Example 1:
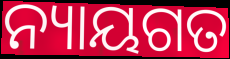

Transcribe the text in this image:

ନ୍ୟାୟଗତ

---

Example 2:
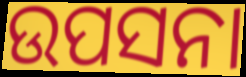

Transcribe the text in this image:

ଉପସନା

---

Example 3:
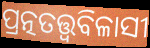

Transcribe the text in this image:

ପ୍ରତ୍ନତତ୍ତ୍ବବିଳାସୀ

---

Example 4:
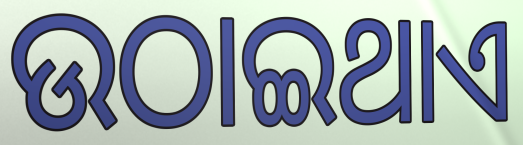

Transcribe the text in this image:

ଉଠାଇଥାଏ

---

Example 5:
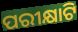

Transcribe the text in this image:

ପରୀକ୍ଷାଟି